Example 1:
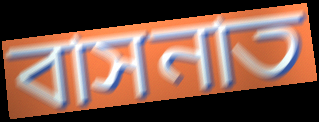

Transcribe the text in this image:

বাসনাত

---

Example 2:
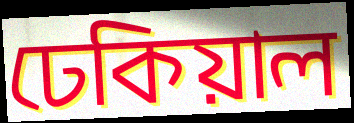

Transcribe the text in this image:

ঢেকিয়াল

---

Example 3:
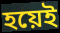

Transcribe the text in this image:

হয়েই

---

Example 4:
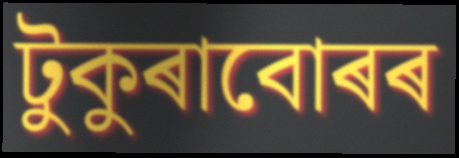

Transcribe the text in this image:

টুকুৰাবোৰৰ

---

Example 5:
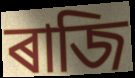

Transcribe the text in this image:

ৰাজি